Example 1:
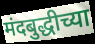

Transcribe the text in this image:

मंदबुद्धीच्या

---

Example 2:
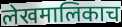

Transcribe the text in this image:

लेखमालिकाच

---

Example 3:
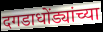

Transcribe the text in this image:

दगडाधोंड्यांच्या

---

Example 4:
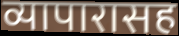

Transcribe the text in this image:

व्यापारासह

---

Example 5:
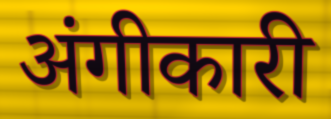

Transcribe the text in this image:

अंगीकारी